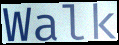
Walk